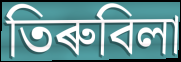
তিৰুবিলা